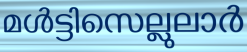
മൾട്ടിസെല്ലുലാർ